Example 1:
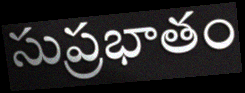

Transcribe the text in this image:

సుప్రభాతం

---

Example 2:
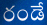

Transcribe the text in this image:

రండే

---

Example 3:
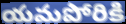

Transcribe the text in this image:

యమపోరికి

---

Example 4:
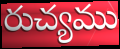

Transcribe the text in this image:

రుచ్యము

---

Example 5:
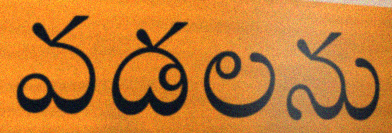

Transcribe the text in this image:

వడలను